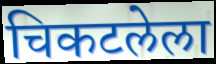
चिकटलेला